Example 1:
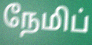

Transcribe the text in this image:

நேமிப்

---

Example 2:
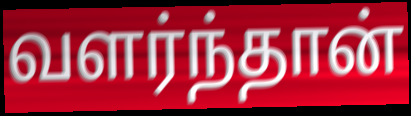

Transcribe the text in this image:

வளர்ந்தான்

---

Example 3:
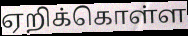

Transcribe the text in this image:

ஏறிக்கொள்ள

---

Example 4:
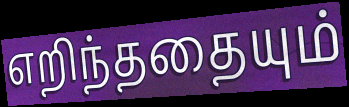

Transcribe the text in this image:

எறிந்ததையும்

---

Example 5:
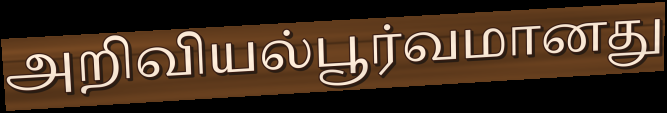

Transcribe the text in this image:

அறிவியல்பூர்வமானது